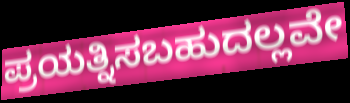
ಪ್ರಯತ್ನಿಸಬಹುದಲ್ಲವೇ